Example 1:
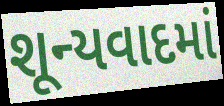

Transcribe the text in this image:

શૂન્યવાદમાં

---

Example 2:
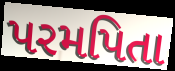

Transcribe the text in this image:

પરમપિતા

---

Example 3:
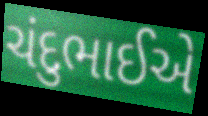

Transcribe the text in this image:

ચંદુભાઈએ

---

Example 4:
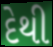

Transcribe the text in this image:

દેથી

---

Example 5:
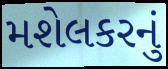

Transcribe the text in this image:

મશેલકરનું